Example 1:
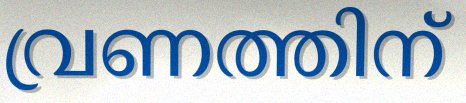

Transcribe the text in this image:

വ്രണത്തിന്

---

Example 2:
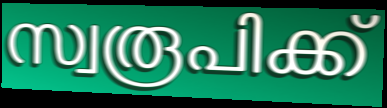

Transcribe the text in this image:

സ്വരൂപിക്ക്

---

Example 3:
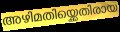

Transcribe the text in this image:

അഴിമതിയ്ക്കെതിരായ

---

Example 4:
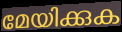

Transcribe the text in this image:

മേയിക്കുക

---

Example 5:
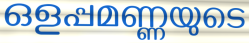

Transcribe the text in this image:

ഒളപ്പമണ്ണയുടെ